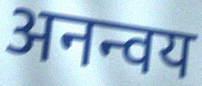
अनन्वय